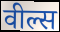
वील्स